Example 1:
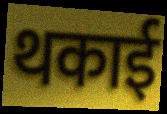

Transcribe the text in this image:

थकाई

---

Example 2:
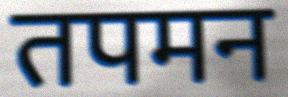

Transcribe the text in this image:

तपमन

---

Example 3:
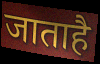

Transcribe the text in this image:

जाताहै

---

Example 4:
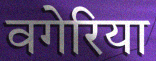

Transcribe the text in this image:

वगेरिया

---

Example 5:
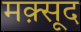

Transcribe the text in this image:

मक़्सूद